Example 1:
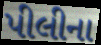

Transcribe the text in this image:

પીલીના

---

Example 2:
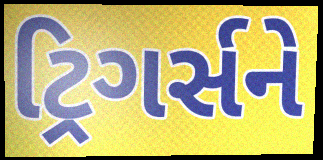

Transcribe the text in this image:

ટ્રિગર્સને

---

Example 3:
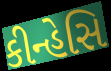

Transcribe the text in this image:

કીન્હેસિ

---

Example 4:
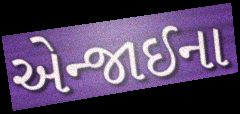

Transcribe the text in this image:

એન્જાઈના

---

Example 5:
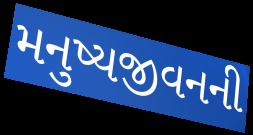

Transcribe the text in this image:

મનુષ્યજીવનની